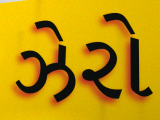
ઝેરો